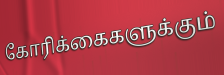
கோரிக்கைகளுக்கும்